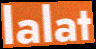
lalat